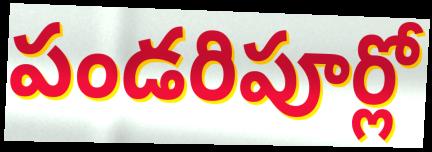
పండరిపూర్లో